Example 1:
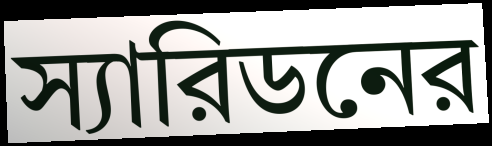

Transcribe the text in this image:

স্যারিডনের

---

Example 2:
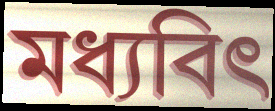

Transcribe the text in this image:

মধ্যবিৎ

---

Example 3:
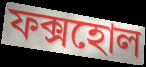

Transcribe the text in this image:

ফক্সহোল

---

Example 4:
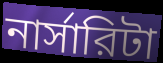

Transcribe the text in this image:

নার্সারিটা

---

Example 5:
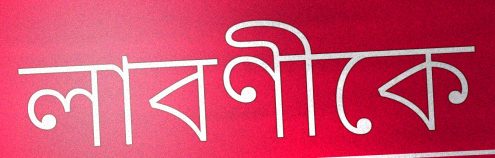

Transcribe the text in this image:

লাবণীকে